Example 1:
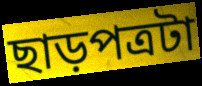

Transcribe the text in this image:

ছাড়পত্রটা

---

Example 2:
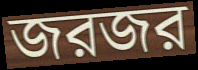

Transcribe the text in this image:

জরজর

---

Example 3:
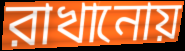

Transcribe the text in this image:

রাখানোয়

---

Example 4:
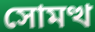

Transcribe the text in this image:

সোমত্থ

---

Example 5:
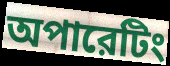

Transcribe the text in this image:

অপারেটিং